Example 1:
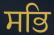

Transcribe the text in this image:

ਸਭਿ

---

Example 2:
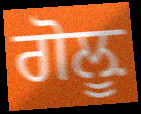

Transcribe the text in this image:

ਗੋਲ਼ੂ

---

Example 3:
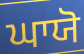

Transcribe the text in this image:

ਘਾਯੋ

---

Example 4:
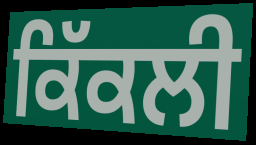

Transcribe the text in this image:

ਕਿੱਕਲੀ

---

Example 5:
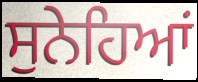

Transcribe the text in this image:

ਸੁਨੇਹਿਆਂ